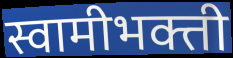
स्वामीभक्ती